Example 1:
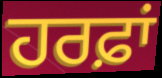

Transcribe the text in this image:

ਹਰਫ਼ਾਂ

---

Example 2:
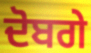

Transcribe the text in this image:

ਦੋਬਗੇ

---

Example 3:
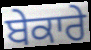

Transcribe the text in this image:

ਬੇਕਾਰੇ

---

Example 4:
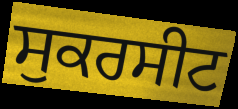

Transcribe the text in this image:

ਸੁਕਰਸੀਟ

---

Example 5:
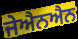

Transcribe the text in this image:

ਜੇਐਨਐਨ